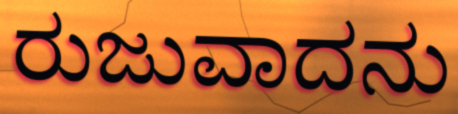
ರುಜುವಾದನು